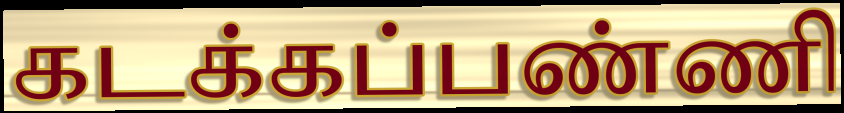
கடக்கப்பண்ணி